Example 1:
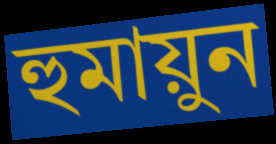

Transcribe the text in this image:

হুমায়ুন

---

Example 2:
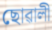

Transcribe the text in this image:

ছোৱালী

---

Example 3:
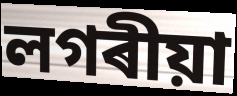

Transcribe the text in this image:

লগৰীয়া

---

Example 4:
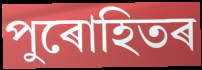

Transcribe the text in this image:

পুৰোহিতৰ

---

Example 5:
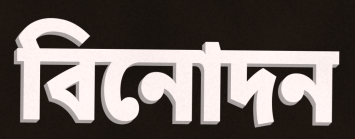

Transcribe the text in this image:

বিনোদন